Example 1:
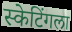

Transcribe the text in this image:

स्केटिंगला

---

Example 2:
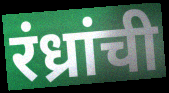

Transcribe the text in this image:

रंध्रांची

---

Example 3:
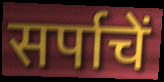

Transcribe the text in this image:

सर्पाचें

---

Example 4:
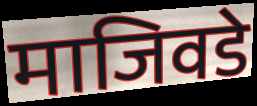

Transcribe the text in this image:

माजिवडे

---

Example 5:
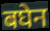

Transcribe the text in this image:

बघेन